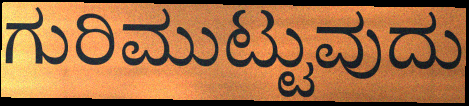
ಗುರಿಮುಟ್ಟುವುದು